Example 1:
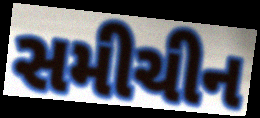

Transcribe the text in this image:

સમીચીન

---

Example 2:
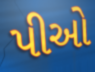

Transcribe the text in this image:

પીઓ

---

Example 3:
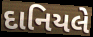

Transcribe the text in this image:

દાનિયલે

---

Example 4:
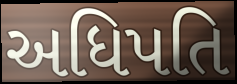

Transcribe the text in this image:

અધિપતિ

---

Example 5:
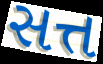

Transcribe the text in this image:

સત્ત